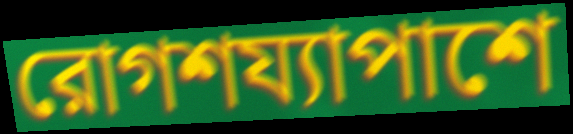
রোগশয্যাপাশে